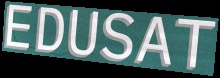
EDUSAT